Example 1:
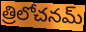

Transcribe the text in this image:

త్రిలోచనమ్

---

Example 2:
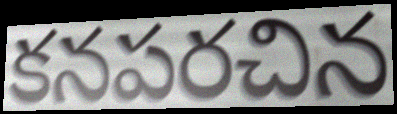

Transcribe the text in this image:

కనపరచిన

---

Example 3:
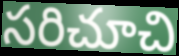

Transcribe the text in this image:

సరిచూచి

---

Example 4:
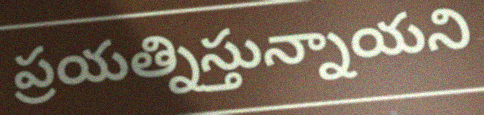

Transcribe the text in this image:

ప్రయత్నిస్తున్నాయని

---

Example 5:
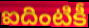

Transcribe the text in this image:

ఐదింటికీ